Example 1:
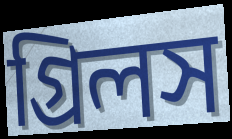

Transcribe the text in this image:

গ্রিলস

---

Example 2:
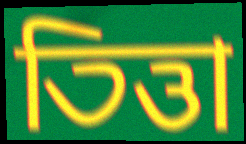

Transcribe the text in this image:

তিত্তা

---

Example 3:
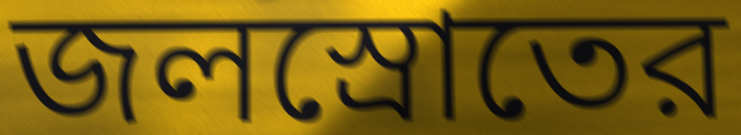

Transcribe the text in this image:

জলস্রোতের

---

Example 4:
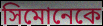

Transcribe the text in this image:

সিমোনেকে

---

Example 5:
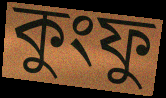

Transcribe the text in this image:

কুংফু